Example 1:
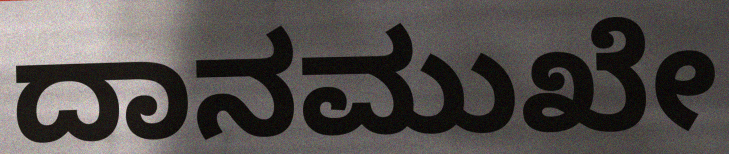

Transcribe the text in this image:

ದಾನಮುಖೇ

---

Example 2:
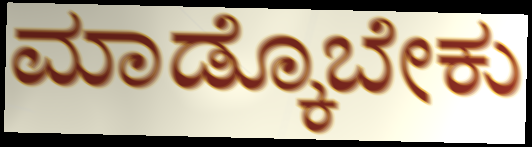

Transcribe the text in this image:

ಮಾಡ್ಕೊಬೇಕು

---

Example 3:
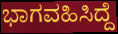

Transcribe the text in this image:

ಭಾಗವಹಿಸಿದ್ದೆ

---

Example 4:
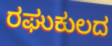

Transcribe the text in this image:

ರಘುಕುಲದ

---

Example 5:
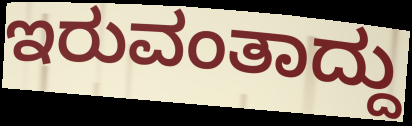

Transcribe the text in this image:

ಇರುವಂತಾದ್ದು